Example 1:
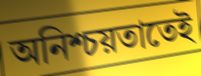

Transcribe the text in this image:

অনিশ্চয়তাতেই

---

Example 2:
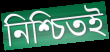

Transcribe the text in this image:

নিশ্চিতই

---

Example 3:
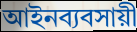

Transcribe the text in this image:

আইনব্যবসায়ী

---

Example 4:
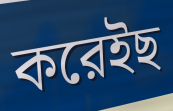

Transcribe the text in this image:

করেইছ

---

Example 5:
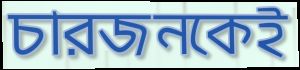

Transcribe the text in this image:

চারজনকেই